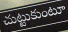
చుట్టుకుంటూ